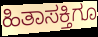
ಹಿತಾಸಕ್ತಿಗೂ